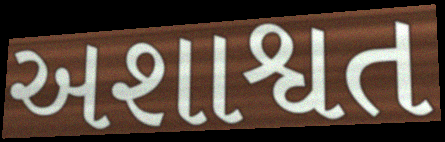
અશાશ્વત